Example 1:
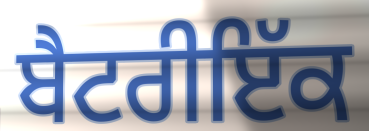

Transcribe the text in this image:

ਬੈਟਰੀਇੱਕ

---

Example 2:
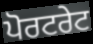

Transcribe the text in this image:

ਪੋਰਟਰੇਟ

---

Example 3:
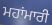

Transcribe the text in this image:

ਮਹਾਂਮਾਰੀ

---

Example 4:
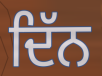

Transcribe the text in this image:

ਦਿੱਨ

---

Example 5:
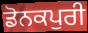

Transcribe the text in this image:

ਡੋਨਕਪੁਰੀ